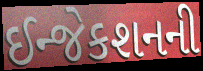
ઈન્જેકશનની